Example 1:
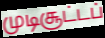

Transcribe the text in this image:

முடிசூட்டப்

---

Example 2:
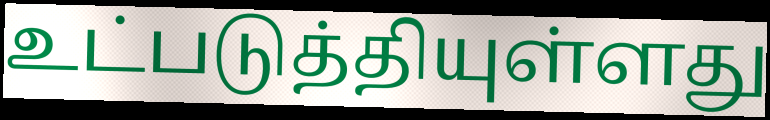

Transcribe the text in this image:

உட்படுத்தியுள்ளது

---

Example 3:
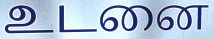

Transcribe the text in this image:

உடனை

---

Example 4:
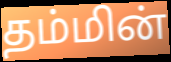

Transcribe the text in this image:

தம்மின்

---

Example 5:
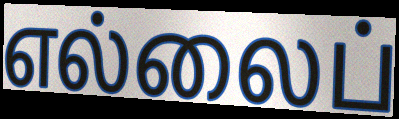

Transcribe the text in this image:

எல்லைப்